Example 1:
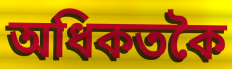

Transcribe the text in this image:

অধিকতকৈ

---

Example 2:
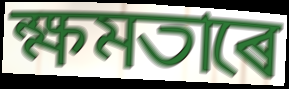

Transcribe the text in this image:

ক্ষমতাৰে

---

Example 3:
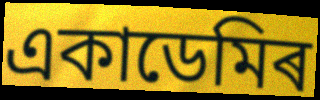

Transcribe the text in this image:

একাডেমিৰ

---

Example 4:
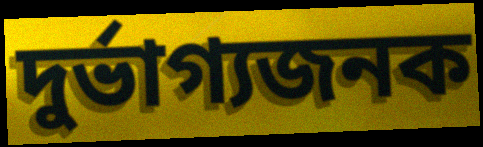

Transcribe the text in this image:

দুৰ্ভাগ্যজনক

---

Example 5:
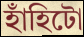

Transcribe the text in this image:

হাঁহিটো